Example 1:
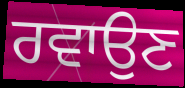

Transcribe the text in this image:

ਰਵਾਉਣ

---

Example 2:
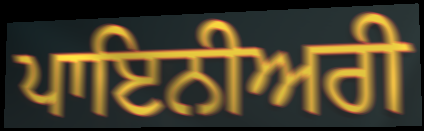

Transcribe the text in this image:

ਪਾਇਨੀਅਰੀ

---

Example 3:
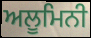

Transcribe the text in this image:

ਅਲੂਮਿਨੀ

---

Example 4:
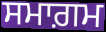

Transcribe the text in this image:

ਸਮਾਗ਼ਮ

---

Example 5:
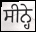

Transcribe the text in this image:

ਸੀਨ੍ਹੇ